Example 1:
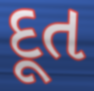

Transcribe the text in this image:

દૂત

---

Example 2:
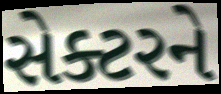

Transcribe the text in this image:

સેક્ટરને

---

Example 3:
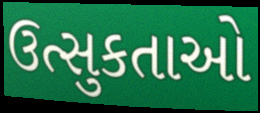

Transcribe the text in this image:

ઉત્સુકતાઓ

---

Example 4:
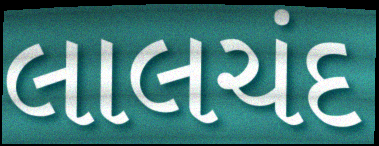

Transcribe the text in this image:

લાલચંદ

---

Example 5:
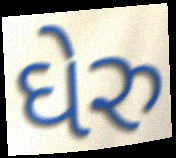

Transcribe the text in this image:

ઘેરુ